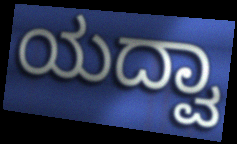
ಯದ್ವಾ